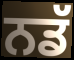
ਨਡੱ